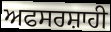
ਅਫਸਰਸ਼ਾਹੀ